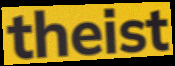
theist